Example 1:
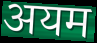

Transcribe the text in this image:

अयम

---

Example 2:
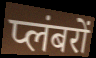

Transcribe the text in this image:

प्लंबरों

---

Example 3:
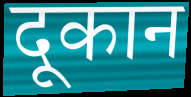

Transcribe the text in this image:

दूकान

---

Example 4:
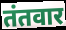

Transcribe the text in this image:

तंतवार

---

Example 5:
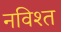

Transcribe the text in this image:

नविश्त